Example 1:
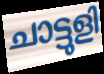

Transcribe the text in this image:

ചാട്ടുളി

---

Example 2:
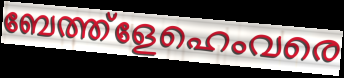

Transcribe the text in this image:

ബേത്ത്ളേഹെംവരെ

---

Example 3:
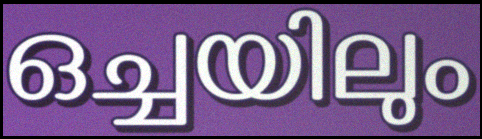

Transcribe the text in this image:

ഒച്ചയിലും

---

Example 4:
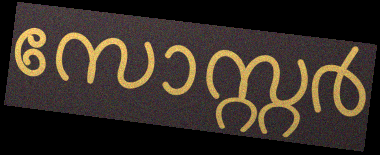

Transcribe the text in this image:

സോസ്റ്റർ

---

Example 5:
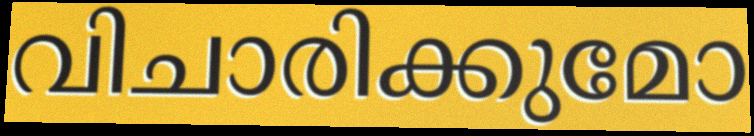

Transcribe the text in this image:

വിചാരിക്കുമോ